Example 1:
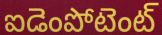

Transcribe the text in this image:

ఐడెంపోటెంట్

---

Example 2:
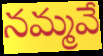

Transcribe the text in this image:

నమ్మవే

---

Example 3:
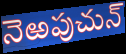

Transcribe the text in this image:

నెఱపుచున్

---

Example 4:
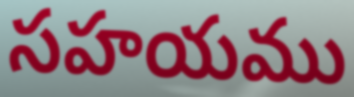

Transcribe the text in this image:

సహయము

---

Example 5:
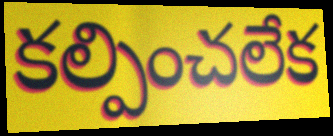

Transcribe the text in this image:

కల్పించలేక